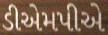
ડીએમપીએ